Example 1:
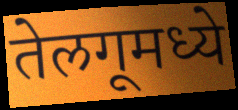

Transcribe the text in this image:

तेलगूमध्ये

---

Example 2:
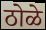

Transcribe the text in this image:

ठोळे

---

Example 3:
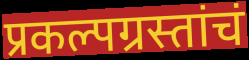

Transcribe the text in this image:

प्रकल्पग्रस्तांचं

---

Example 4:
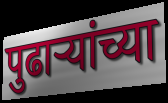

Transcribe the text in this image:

पुढाऱ्यांच्या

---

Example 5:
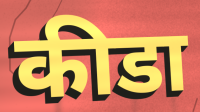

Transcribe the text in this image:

कीडा